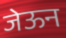
जेऊन